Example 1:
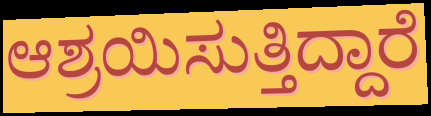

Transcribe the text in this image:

ಆಶ್ರಯಿಸುತ್ತಿದ್ದಾರೆ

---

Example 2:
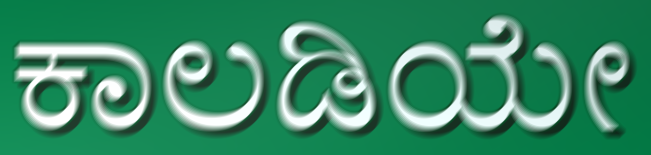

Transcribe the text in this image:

ಕಾಲಡಿಯೇ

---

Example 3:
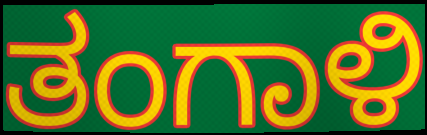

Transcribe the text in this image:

ತಂಗಾಳಿ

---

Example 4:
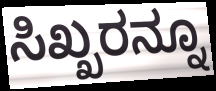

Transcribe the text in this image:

ಸಿಖ್ಖರನ್ನೂ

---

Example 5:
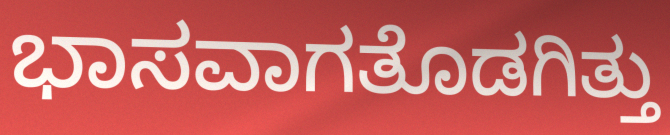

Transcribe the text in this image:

ಭಾಸವಾಗತೊಡಗಿತ್ತು